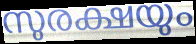
സുരക്ഷയും